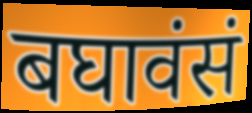
बघावंसं